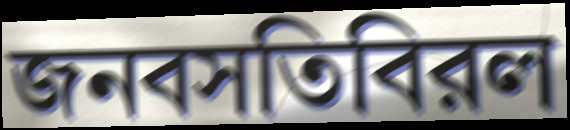
জনবসতিবিরল